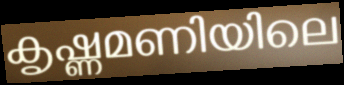
കൃഷ്ണമണിയിലെ